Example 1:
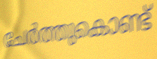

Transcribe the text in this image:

ചേർത്തുകൊണ്ട്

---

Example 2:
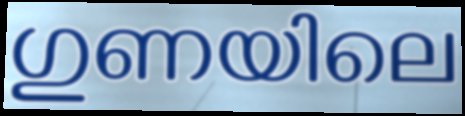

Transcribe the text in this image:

ഗുണയിലെ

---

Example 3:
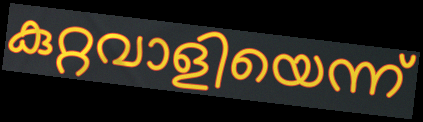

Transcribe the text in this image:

കുറ്റവാളിയെന്ന്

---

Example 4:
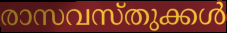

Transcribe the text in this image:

രാസവസ്തുക്കൾ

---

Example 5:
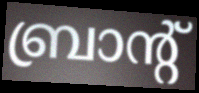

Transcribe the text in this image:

ബ്രാന്റ്